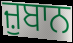
ਜ਼ੁਬਾਨ